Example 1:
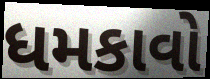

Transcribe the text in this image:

ધમકાવો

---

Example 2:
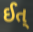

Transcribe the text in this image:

ઈત્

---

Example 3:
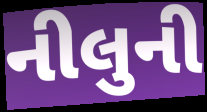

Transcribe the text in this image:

નીલુની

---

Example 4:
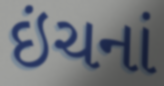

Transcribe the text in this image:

ઇંચનાં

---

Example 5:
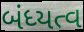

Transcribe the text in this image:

બંધ્યત્વ